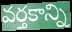
వర్తకాన్ని